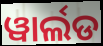
ୱାର୍ଲଡ